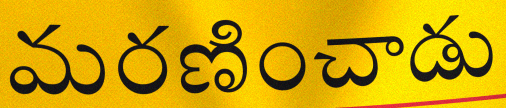
మరణించాడు